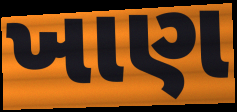
ખાણ